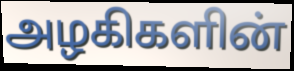
அழகிகளின்